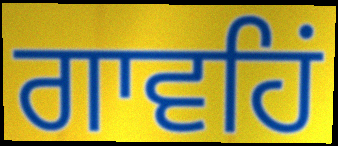
ਗਾਵਹਿਂ